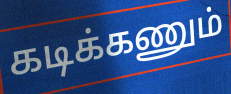
கடிக்கணும்